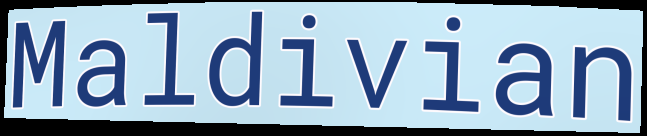
Maldivian